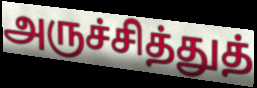
அருச்சித்துத்